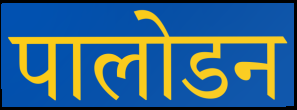
पालोडन